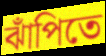
ঝাঁপিতে